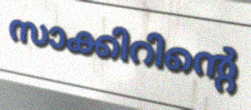
സാക്കിറിന്റെ